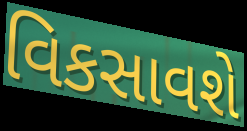
વિકસાવશે